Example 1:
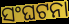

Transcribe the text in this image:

ସଂଘଟନା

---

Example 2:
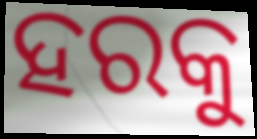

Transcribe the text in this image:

ହରକୁ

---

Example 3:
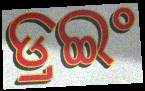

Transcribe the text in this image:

ଡ୍ରଇଂ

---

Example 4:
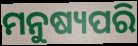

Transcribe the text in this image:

ମନୁଷ୍ୟପରି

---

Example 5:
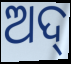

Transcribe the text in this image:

ଅଦ୍